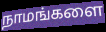
நாமங்களை